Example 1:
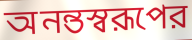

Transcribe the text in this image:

অনন্তস্বরূপের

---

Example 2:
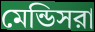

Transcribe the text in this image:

মেন্ডিসরা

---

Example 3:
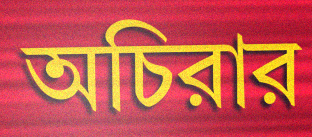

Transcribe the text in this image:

অচিরার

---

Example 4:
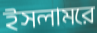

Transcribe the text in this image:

ইসলামরে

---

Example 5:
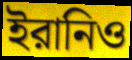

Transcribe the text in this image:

ইরানিও